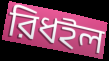
রিধইল